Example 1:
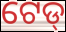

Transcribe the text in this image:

ଟେଡ୍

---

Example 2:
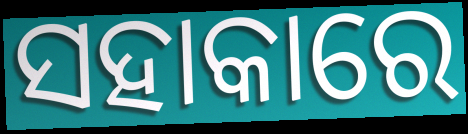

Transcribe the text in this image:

ସହାକାରେ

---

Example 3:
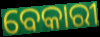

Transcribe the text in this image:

ବେକାରୀ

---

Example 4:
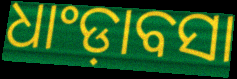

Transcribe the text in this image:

ଧାଂଡ଼ାବସା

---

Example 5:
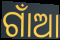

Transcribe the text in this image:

ଗାଁଆ